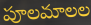
పూలమాలల